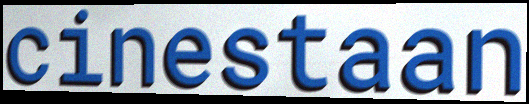
cinestaan